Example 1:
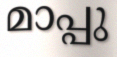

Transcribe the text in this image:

മാപ്പു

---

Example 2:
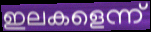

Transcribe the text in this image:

ഇലകളെന്ന്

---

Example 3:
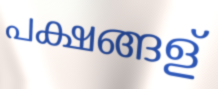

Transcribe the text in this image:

പക്ഷങ്ങള്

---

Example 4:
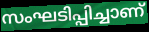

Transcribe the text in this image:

സംഘടിപ്പിച്ചാണ്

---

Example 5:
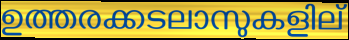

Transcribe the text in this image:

ഉത്തരക്കടലാസുകളില്